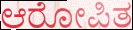
ಆರೋಪಿತ